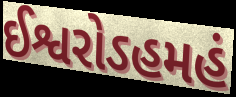
ઈશ્વરોઽહમહં